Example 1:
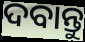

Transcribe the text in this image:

ଦବାନ୍ତୁ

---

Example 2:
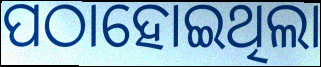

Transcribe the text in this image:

ପଠାହୋଇଥିଲା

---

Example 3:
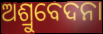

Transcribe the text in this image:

ଅଶ୍ରୁବେଦନା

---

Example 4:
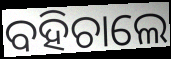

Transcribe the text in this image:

ବହିଚାଲେ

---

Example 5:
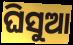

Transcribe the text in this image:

ଘିସୁଆ